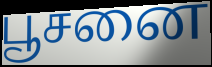
பூசனை